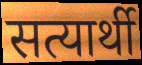
सत्यार्थी